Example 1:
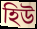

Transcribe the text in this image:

হিউ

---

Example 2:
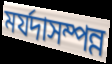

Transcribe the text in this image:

মৰ্যদাসম্পন্ন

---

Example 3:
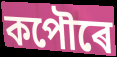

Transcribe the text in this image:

কপৌৰে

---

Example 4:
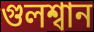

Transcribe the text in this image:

গুলশ্বান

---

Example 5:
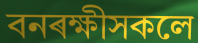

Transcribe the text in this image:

বনৰক্ষীসকলে